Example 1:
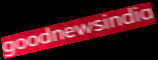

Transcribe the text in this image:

goodnewsindia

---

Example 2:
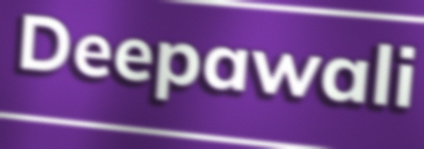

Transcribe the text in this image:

Deepawali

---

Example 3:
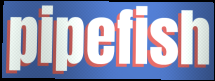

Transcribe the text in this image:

pipefish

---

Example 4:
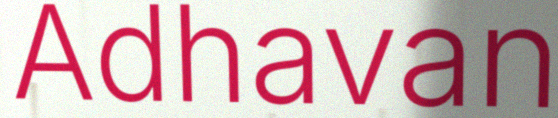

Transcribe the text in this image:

Adhavan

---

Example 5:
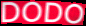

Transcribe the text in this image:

DODO